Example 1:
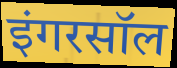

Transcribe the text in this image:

इंगरसॉल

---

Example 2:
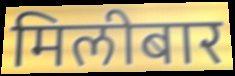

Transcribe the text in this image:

मिलीबार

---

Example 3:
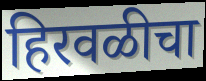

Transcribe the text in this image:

हिरवळीचा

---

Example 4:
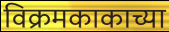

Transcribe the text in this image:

विक्रमकाकाच्या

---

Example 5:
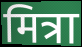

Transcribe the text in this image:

मित्रा